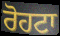
ਰੋਹਟਾ